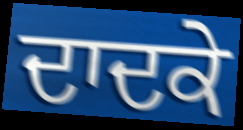
ਦਾਦਕੇ